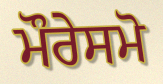
ਮੌਰੇਸਮੋ